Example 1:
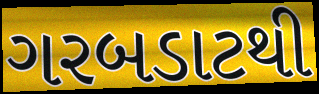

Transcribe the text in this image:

ગરબડાટથી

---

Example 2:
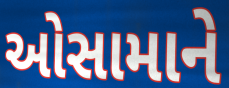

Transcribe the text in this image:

ઓસામાને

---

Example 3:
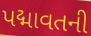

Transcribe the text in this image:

પદ્માવતની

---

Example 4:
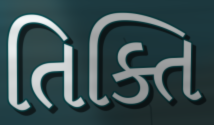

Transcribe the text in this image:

તિક્તિ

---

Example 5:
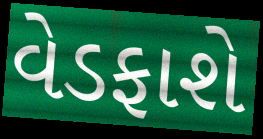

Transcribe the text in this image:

વેડફાશે